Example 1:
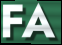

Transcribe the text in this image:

FA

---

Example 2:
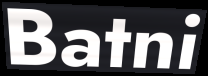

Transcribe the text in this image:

Batni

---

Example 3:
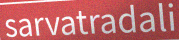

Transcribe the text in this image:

sarvatradali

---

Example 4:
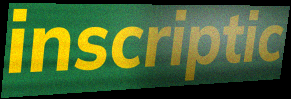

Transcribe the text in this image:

inscriptic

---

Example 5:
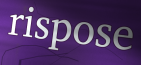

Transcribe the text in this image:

rispose